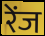
रेंज